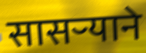
सासऱ्याने